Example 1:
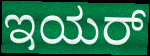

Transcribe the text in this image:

ಇಯರ್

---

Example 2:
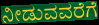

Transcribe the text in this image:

ನೀಡುವವರೆಗೆ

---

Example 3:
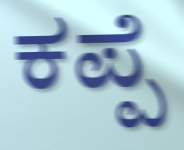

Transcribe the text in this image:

ಕಪ್ಪೆ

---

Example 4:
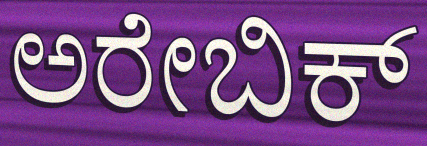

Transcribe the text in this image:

ಅರೇಬಿಕ್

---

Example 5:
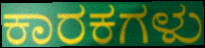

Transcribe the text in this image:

ಕಾರಕಗಳು